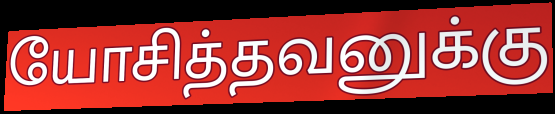
யோசித்தவனுக்கு